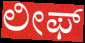
ಲೀಫ್